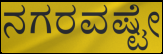
ನಗರವಷ್ಟೇ